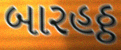
બારહઠ્ઠ